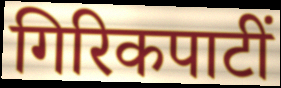
गिरिकपाटीं